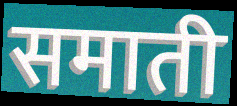
समाती